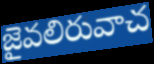
జైవలిరువాచ